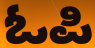
ಓಪಿ